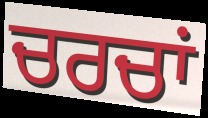
ਚਰਚਾਂ